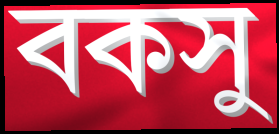
বকসু